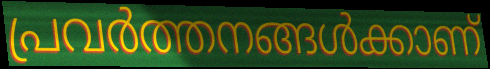
പ്രവർത്തനങ്ങൾക്കാണ്